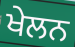
ਖੇਲਨ